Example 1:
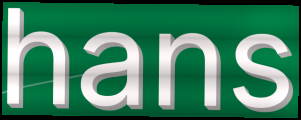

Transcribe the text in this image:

hans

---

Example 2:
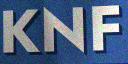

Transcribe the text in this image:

KNF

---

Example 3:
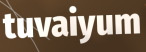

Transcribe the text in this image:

tuvaiyum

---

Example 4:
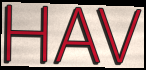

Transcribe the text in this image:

HAV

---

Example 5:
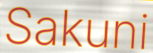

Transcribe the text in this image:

Sakuni